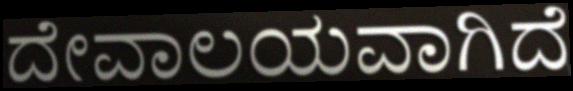
ದೇವಾಲಯವಾಗಿದೆ